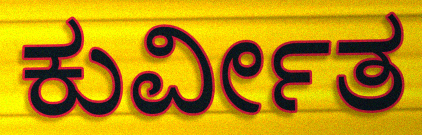
ಕುರ್ವೀತ